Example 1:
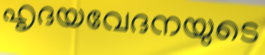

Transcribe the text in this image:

ഹൃദയവേദനയുടെ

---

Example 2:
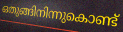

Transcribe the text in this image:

ഒതുങ്ങിനിന്നുകൊണ്ട്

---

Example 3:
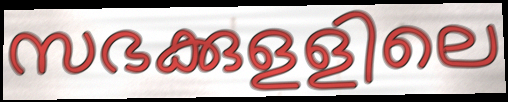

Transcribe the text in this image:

സഭക്കുളളിലെ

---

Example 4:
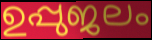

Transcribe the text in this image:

ഉപ്പുജലം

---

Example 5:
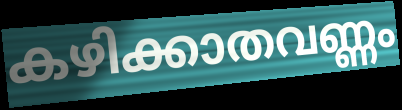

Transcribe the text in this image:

കഴിക്കാതവണ്ണം